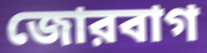
জোরবাগ